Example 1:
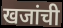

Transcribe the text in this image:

खजांची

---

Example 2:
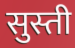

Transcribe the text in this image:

सुस्‍ती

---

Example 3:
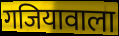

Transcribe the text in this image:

गजियावाला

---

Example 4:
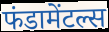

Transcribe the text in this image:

फंडामेंटल्स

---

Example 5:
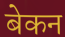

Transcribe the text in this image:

बेकन